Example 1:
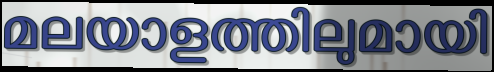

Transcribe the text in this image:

മലയാളത്തിലുമായി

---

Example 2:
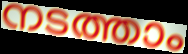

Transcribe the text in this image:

നടത്താം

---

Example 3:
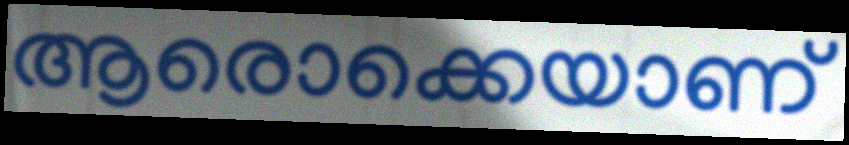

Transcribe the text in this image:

ആരൊക്കെയാണ്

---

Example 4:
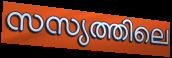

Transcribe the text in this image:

സസ്യത്തിലെ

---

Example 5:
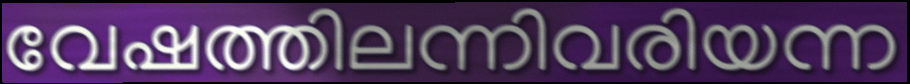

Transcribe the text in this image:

വേഷത്തിലന്നിവരിയന്ന